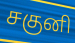
சகுனி